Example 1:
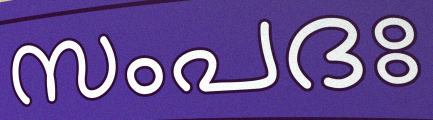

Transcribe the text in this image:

സംപദഃ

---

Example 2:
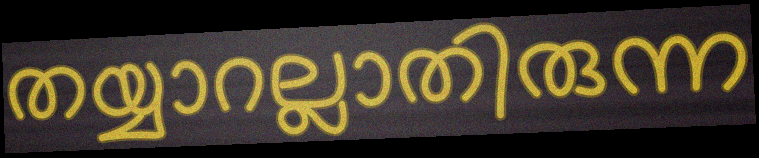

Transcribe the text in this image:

തയ്യാറല്ലാതിരുന്ന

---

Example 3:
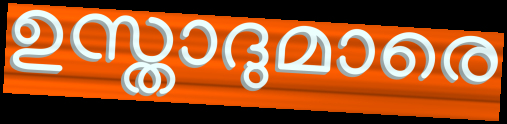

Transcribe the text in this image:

ഉസ്താദുമാരെ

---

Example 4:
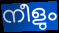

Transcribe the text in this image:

നീളും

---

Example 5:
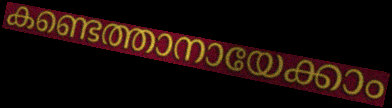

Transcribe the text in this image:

കണ്ടെത്താനായേക്കാം